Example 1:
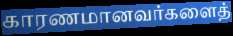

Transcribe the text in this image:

காரணமானவர்களைத்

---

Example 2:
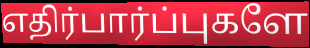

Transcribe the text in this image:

எதிர்பார்ப்புகளே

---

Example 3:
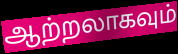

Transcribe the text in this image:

ஆற்றலாகவும்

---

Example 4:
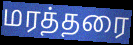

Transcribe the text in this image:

மரத்தரை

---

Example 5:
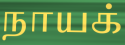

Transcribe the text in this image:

நாயக்